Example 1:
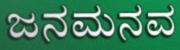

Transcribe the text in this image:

ಜನಮನವ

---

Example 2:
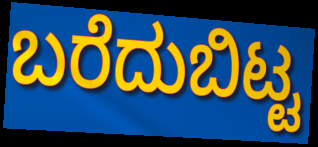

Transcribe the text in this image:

ಬರೆದುಬಿಟ್ಟ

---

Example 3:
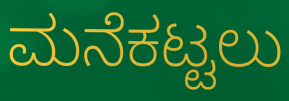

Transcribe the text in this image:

ಮನೆಕಟ್ಟಲು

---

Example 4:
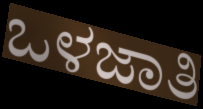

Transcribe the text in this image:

ಒಳಜಾತಿ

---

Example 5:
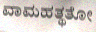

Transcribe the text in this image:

ವಾಮಹತ್ಥತೋ